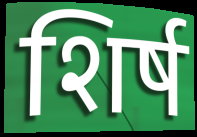
शिर्ष